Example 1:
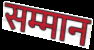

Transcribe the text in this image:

सम्‍मान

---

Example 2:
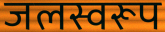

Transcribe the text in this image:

जलस्वरूप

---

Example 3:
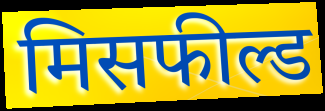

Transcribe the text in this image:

मिसफील्ड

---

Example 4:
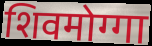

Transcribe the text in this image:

शिवमोग्गा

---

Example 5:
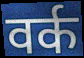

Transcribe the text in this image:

वर्क